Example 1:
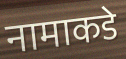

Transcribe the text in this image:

नामाकडे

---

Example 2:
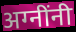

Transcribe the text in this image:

अग्नींनी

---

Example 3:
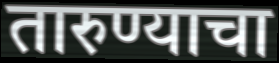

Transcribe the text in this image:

तारुण्याचा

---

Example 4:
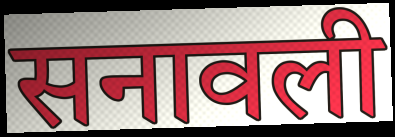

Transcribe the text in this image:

सनावली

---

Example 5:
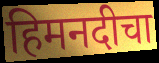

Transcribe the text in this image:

हिमनदीचा